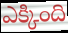
ఎక్కింది